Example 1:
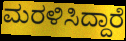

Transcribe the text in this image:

ಮರಳಿಸಿದ್ದಾರೆ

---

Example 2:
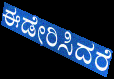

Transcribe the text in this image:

ಈಡೇರಿಸಿದರೆ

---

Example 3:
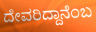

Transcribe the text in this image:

ದೇವರಿದ್ದಾನೆಂಬ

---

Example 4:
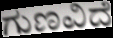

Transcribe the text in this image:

ಗುಣವಿದೆ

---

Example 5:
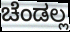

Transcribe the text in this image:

ಚೆಂಡಲ್ಲ